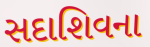
સદાશિવના